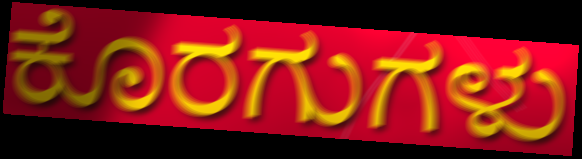
ಕೊರಗುಗಳು